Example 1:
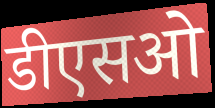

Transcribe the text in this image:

डीएसओ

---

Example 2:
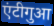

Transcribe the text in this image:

एंटीगुआ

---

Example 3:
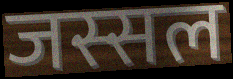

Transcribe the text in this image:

जस्सल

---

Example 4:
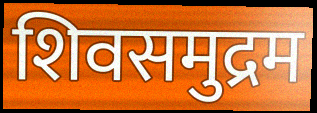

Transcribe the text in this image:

शिवसमुद्रम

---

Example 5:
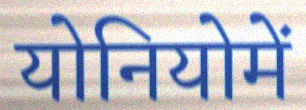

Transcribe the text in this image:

योनियोमें